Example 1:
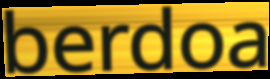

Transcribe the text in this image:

berdoa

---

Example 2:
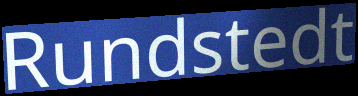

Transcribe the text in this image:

Rundstedt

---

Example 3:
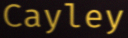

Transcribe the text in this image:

Cayley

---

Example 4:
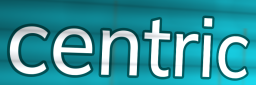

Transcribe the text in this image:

centric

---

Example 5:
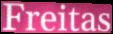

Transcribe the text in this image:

Freitas